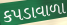
કપડાવાળા